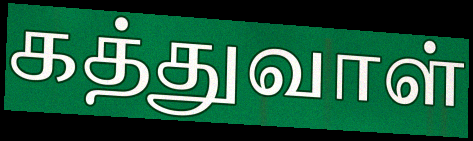
கத்துவாள்